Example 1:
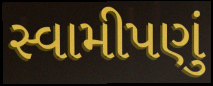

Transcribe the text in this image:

સ્વામીપણું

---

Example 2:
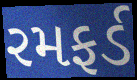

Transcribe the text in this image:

રમફર્ડ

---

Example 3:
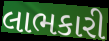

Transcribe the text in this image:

લાભકારી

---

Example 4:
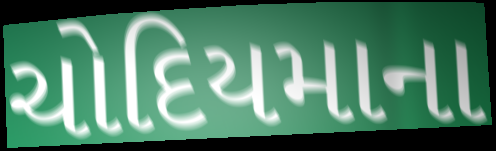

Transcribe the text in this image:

ચોદિયમાના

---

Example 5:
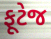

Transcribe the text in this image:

ફૂટેજ